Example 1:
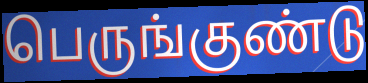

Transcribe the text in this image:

பெருங்குண்டு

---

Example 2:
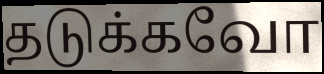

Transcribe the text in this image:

தடுக்கவோ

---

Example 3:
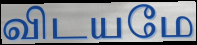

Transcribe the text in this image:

விடயமே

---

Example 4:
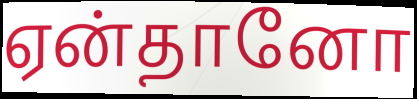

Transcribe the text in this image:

ஏன்தானோ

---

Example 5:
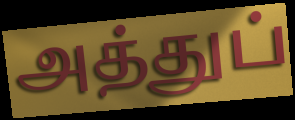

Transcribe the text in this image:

அத்துப்